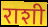
राशी